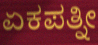
ಏಕಪತ್ನೀ